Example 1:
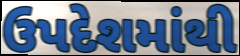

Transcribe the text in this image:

ઉપદેશમાંથી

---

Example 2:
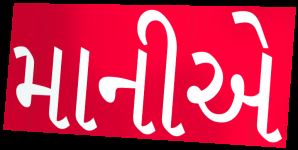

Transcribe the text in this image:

માનીએ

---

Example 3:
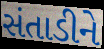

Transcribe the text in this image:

સંતાડીને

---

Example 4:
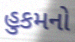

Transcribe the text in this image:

હુકમનો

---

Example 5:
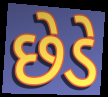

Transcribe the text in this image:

છેડે